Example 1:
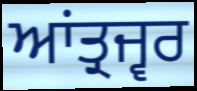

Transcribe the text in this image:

ਆਂਤ੍ਰਜ੍ਵਰ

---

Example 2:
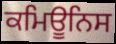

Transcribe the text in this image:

ਕਮਿਊਨਿਸ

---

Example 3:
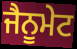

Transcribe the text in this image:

ਜੈਨੂਮੇਟ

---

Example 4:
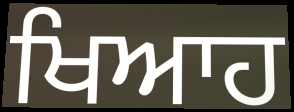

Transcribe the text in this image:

ਖਿਆਹ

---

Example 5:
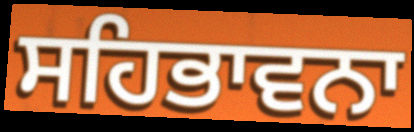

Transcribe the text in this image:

ਸਹਿਭਾਵਨਾ